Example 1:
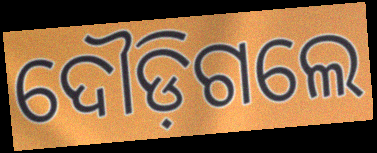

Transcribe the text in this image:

ଦୌଡ଼ିଗଲେ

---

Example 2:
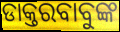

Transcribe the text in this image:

ଡାକ୍ତରବାବୁଙ୍କ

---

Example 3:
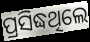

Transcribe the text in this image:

ପ୍ରସିଦ୍ଧଥିଲେ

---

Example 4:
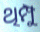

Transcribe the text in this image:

ଥିମ୍ପୁ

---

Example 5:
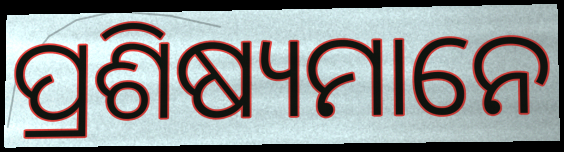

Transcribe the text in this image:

ପ୍ରଶିଷ୍ୟମାନେ